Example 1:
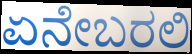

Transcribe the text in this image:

ಏನೇಬರಲಿ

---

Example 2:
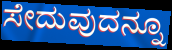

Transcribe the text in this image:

ಸೇದುವುದನ್ನೂ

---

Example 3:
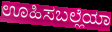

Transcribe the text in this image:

ಊಹಿಸಬಲ್ಲೆಯಾ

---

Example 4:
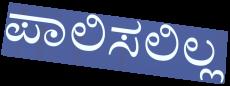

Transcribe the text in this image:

ಪಾಲಿಸಲಿಲ್ಲ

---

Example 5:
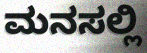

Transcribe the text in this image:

ಮನಸಲ್ಲಿ